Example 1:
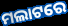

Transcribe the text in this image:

ମଲାଟରେ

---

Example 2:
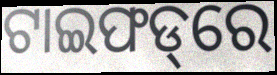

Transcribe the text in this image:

ଟାଇଫଡ୍‌ରେ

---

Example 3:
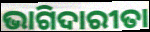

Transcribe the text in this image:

ଭାଗିଦାରୀତା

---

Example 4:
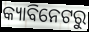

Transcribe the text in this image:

କ୍ୟାବିନେଟରୁ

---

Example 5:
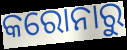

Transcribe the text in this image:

କରୋନାରୁ